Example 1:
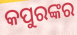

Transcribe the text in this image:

କପୁରଙ୍କର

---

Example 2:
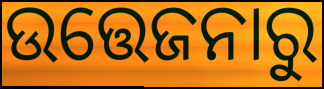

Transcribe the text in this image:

ଉତ୍ତେଜନାରୁ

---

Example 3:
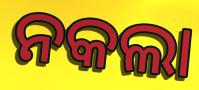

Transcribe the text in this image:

ନକଲା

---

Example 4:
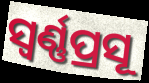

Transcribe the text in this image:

ସ୍ୱର୍ଣ୍ଣପ୍ରସୂ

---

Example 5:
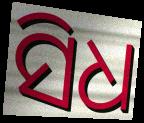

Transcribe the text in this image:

ସିଧ